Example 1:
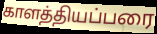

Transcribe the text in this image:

காளத்தியப்பரை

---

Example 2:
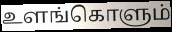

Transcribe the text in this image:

உளங்கொளும்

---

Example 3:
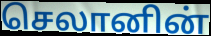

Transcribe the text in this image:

செலானின்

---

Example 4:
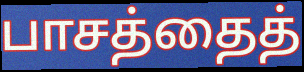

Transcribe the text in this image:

பாசத்தைத்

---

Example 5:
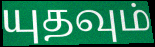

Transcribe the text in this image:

யுதவும்